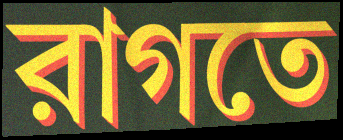
রাগতে